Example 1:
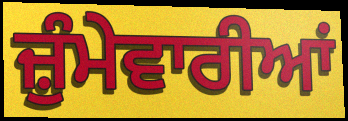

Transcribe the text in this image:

ਜ਼ੁੰਮੇਵਾਰੀਆਂ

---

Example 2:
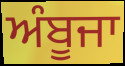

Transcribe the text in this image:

ਅੰਬੂਜਾ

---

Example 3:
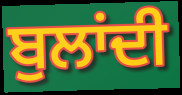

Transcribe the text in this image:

ਬੁਲਾਂਦੀ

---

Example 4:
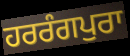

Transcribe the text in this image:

ਹਰਰੰਗਪੁਰਾ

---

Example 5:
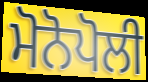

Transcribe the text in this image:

ਮੋਨੋਪੋਲੀ